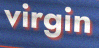
virgin